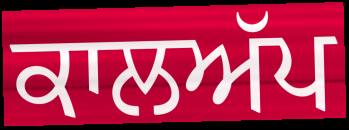
ਕਾਲਅੱਪ